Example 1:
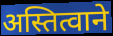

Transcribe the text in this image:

अस्तित्वाने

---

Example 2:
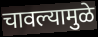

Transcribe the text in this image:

चावल्यामुळे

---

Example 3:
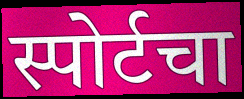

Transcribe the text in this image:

स्पोर्टचा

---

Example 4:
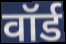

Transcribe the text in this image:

वॉर्ड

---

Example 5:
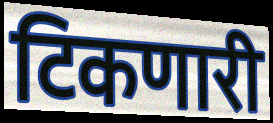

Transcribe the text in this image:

टिकणारी